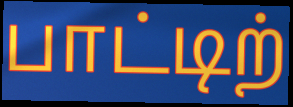
பாட்டிற்